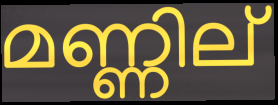
മണ്ണില്